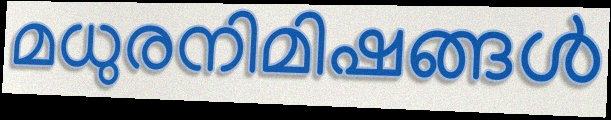
മധുരനിമിഷങ്ങൾ